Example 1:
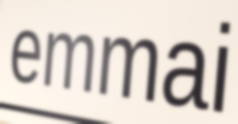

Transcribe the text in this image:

emmai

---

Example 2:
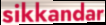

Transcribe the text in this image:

sikkandar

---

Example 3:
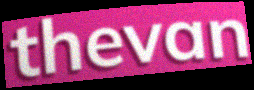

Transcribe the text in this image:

thevan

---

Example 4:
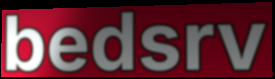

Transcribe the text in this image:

bedsrv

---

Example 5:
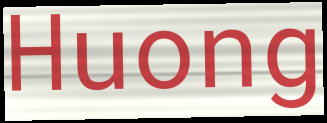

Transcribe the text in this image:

Huong